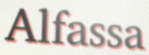
Alfassa